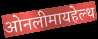
ओनलीमायहेल्थ